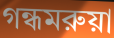
গন্ধমরুয়া